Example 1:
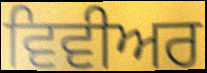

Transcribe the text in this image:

ਵਿਵੀਅਰ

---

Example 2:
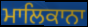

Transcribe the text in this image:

ਮਾਲਿਕਾਨਾ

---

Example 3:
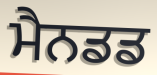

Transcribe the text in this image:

ਮੈਨਡਡ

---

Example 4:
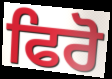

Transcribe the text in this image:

ਫਿਰੋ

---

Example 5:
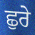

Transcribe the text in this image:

ਛੁਰੇ